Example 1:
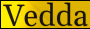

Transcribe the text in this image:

Vedda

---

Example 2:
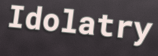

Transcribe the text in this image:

Idolatry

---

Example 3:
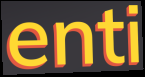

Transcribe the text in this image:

enti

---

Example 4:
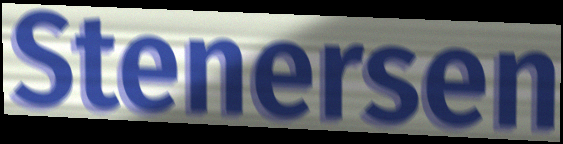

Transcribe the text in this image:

Stenersen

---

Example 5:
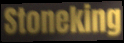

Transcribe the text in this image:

Stoneking